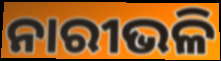
ନାରୀଭଳି